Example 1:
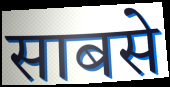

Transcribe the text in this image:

साबसे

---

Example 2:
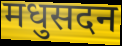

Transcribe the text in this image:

मधुसदन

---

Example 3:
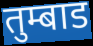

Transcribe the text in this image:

तुम्बाड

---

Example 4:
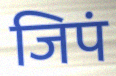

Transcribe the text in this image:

जिपं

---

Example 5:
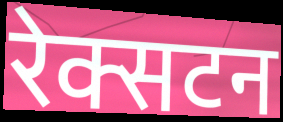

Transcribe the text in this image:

रेक्सटन